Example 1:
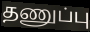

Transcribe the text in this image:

தணுப்பு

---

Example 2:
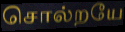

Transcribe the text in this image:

சொல்றயே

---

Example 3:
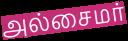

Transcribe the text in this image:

அல்சைமர்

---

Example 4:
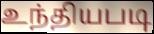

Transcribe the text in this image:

உந்தியபடி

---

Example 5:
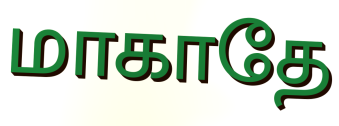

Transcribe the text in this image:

மாகாதே